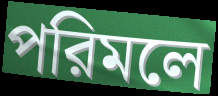
পরিমলে